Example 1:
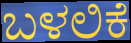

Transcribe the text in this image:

ಬಳಲಿಕೆ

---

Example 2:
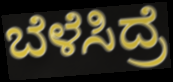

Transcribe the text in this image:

ಬೆಳೆಸಿದ್ರೆ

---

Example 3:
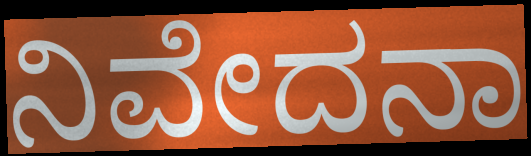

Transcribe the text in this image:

ನಿವೇದನಾ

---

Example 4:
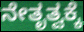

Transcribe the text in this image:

ನೇತೃತ್ವಕ್ಕೆ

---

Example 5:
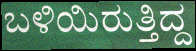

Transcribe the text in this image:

ಬಳಿಯಿರುತ್ತಿದ್ದ